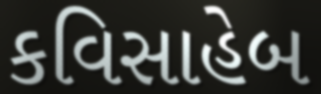
કવિસાહેબ